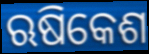
ଋଷିକେଶ